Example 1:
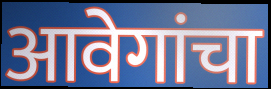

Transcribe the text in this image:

आवेगांचा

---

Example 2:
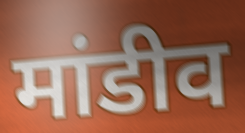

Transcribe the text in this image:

मांडीव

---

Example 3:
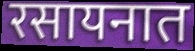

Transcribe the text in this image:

रसायनात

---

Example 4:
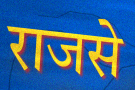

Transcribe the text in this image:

राजसे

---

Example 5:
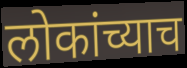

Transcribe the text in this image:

लोकांच्याच